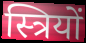
स्त्रियों